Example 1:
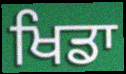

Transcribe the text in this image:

ਖਿਡਾ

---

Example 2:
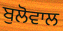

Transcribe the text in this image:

ਬੁਲੋਵਾਲ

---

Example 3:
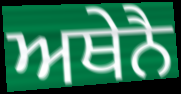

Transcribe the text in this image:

ਅਥੇਨੈ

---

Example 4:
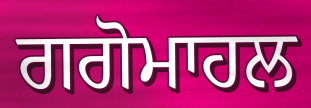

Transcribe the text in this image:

ਗਗੋਮਾਹਲ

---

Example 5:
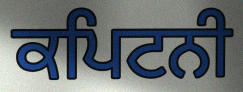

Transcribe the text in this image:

ਕਪਿਟਨੀ